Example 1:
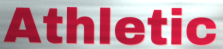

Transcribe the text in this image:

Athletic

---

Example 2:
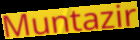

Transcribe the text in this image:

Muntazir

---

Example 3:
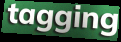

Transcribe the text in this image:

tagging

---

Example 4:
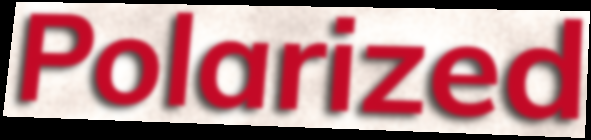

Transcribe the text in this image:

Polarized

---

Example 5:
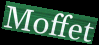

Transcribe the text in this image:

Moffet